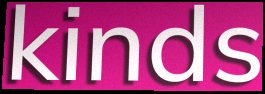
kinds